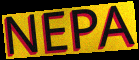
NEPA